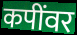
कपींवर